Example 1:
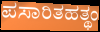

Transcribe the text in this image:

ಪಸಾರಿತಹತ್ಥಂ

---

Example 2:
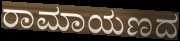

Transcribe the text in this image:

ರಾಮಾಯಣದ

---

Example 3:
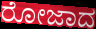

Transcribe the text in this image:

ರೋಜಾದ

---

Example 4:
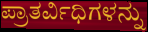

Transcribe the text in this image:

ಪ್ರಾತರ್ವಿಧಿಗಳನ್ನು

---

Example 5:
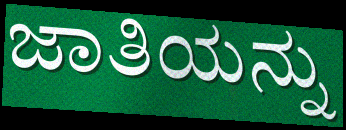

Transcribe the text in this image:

ಜಾತಿಯನ್ನು